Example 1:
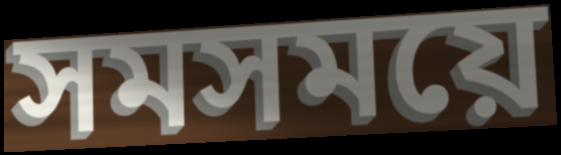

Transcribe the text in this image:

সমসময়ে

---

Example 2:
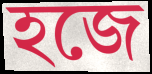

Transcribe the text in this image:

হজে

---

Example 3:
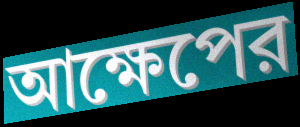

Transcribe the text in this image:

আক্ষেপের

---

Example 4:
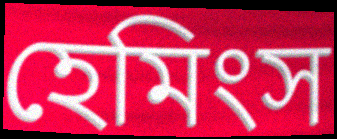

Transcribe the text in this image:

হেমিংস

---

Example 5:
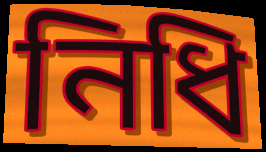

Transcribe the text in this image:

নিধি